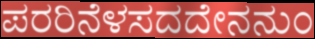
ಪರರಿನೆಳಸದದೇನನುಂ